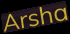
Arsha